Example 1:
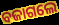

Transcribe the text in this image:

ବଜାଗଲେ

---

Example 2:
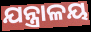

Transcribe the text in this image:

ଯନ୍ତ୍ରାଳୟ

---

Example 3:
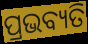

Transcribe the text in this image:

ପ୍ରଭବ୍ୟତି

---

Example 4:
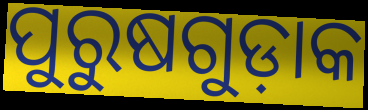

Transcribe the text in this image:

ପୁରୁଷଗୁଡ଼ାକ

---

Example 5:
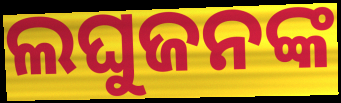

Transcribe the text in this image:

ଲଘୁଜନଙ୍କ